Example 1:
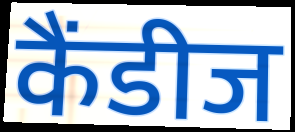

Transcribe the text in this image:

कैंडीज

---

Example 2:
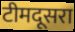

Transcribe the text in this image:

टीमदूसरा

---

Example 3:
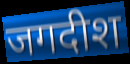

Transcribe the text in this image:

जगदीश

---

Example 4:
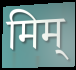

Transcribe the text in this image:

मिम्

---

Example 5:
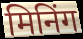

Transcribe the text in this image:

मिनिंग